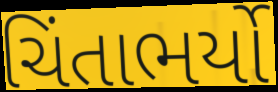
ચિંતાભર્યો